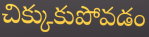
చిక్కుకుపోవడం